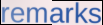
remarks